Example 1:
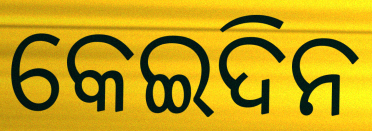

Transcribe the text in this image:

କେଇଦିନ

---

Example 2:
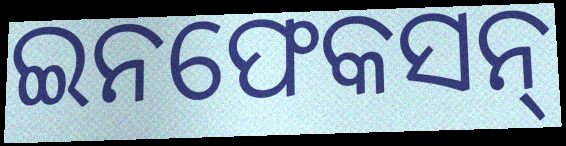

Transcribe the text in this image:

ଇନଫେକସନ୍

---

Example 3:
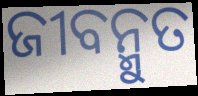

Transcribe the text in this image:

ଜୀବନ୍ମୁତ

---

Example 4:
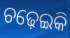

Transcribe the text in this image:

ଚଢ଼େଇକି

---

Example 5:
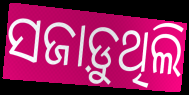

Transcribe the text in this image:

ସଜାଡ଼ୁଥିଲି